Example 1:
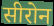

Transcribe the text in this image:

सीरोन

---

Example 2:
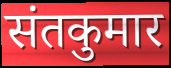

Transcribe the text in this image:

संतकुमार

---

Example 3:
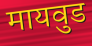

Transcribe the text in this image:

मायवुड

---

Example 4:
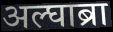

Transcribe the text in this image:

अल्घाब्रा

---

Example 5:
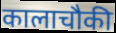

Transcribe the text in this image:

कालाचौकी